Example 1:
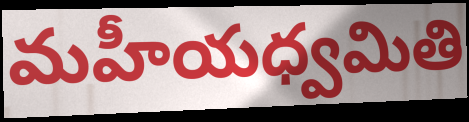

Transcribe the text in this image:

మహీయధ్వమితి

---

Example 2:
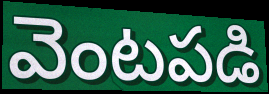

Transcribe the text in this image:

వెంటపడి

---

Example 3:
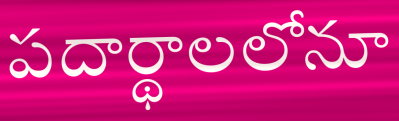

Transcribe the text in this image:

పదార్థాలలోనూ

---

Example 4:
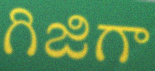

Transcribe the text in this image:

గిజిగా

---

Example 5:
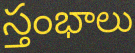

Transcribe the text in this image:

స్తంభాలు